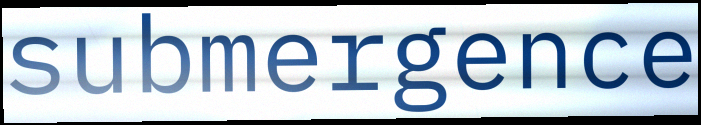
submergence